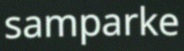
samparke